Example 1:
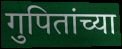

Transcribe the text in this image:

गुपितांच्या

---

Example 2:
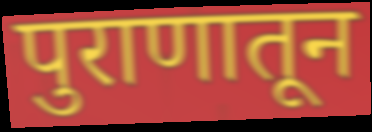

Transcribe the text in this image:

पुराणातून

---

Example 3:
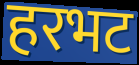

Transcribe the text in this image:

हरभट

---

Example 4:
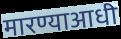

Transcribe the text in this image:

मारण्याआधी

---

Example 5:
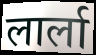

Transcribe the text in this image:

लार्ला